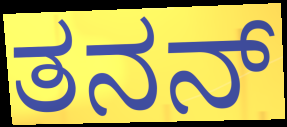
ತನನ್